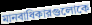
মানবাধিকারগুলোকে